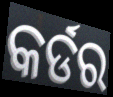
କର୍ଡର